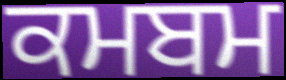
ਕਮਬਮ